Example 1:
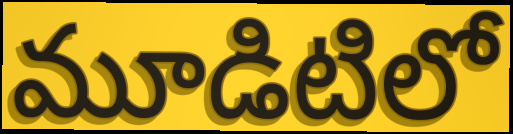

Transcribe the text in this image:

మూడిటిలో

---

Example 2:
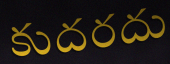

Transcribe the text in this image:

కుదరదు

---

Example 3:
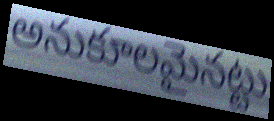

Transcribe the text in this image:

అనుకూలమైనట్టు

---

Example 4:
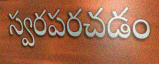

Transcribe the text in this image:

స్వరపరచడం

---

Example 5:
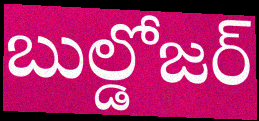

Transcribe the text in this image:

బుల్డోజర్